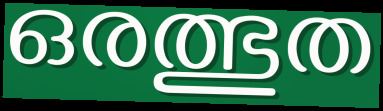
ഒരത്ഭുത